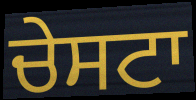
ਚੇਸਟਾ